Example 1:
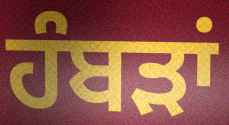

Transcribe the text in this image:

ਹੰਬੜਾਂ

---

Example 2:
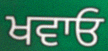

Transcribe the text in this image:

ਖਵਾਓ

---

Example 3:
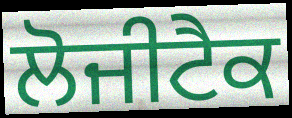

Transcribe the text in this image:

ਲੋਜੀਟੈਕ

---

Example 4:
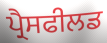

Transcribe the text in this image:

ਪ੍ਰੈਸਫੀਲਡ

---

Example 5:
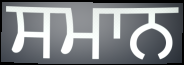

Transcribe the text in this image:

ਸਮਾਨ